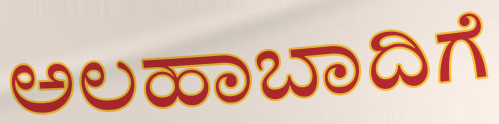
ಅಲಹಾಬಾದಿಗೆ